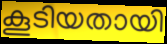
കൂടിയതായി